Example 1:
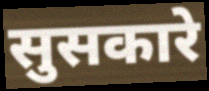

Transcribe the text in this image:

सुसकारे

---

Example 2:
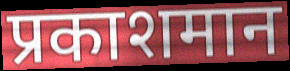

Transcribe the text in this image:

प्रकाशमान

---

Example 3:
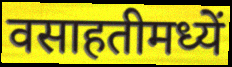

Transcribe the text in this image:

वसाहतीमध्यें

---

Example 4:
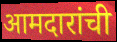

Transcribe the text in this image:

आमदारांची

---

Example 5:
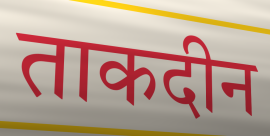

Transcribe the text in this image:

ताकदीन